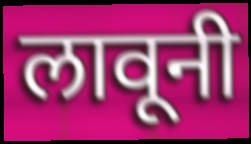
लावूनी